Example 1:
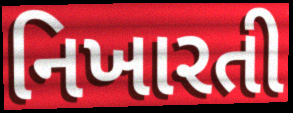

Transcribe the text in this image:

નિખારતી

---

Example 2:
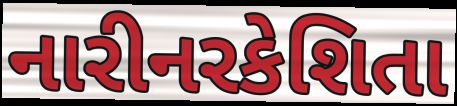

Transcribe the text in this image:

નારીનરકેશિતા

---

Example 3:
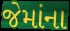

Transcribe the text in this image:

જેમાંના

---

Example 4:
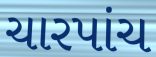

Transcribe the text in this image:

ચારપાંચ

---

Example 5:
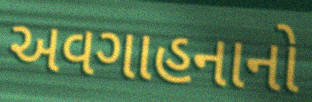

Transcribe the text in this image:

અવગાહનાનો